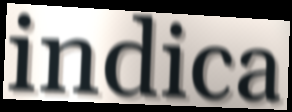
indica